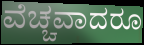
ವೆಚ್ಚವಾದರೂ